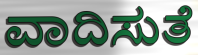
ವಾದಿಸುತೆ